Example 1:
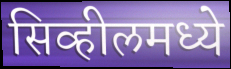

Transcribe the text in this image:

सिव्हीलमध्ये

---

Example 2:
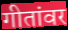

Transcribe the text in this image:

गीतांवर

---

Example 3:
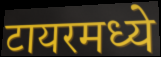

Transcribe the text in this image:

टायरमध्ये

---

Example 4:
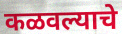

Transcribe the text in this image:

कळवल्याचे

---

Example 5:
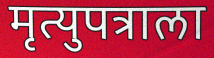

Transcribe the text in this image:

मृत्युपत्राला